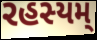
રહસ્યમ્